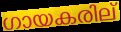
ഗായകരില്